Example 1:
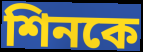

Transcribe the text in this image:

শিনকে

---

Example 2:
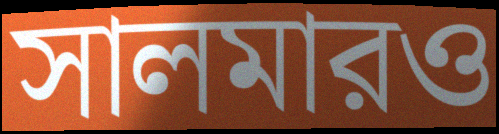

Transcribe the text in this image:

সালমারও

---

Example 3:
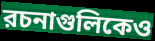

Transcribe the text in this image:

রচনাগুলিকেও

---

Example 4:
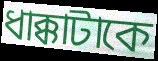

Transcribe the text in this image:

ধাক্কাটাকে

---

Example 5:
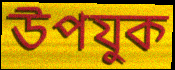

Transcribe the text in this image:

উপযুক